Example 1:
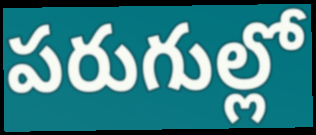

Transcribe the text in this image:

పరుగుల్లో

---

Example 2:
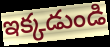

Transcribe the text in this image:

ఇక్కడుండి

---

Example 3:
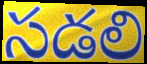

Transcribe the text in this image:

సడలి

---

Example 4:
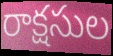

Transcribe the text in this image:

రాక్షసుల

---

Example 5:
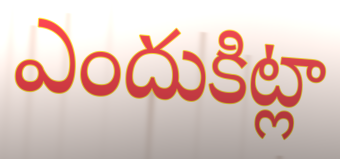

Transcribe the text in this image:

ఎందుకిట్లా